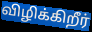
விழிக்கிறீர்